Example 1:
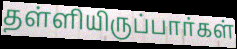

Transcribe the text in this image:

தள்ளியிருப்பார்கள்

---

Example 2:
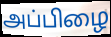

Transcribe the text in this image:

அப்பிழை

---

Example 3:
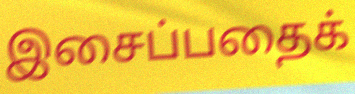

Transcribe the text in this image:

இசைப்பதைக்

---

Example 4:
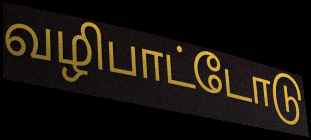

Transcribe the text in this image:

வழிபாட்டோடு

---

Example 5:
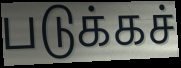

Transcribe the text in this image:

படுக்கச்